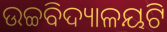
ଉଚ୍ଚବିଦ୍ୟାଳୟଟି